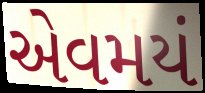
એવમયં